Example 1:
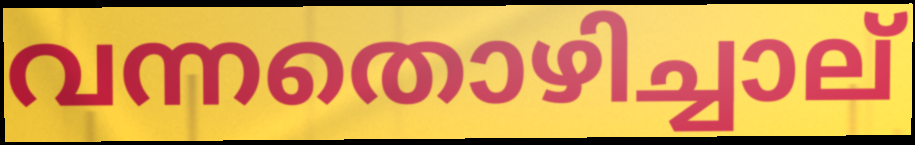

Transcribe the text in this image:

വന്നതൊഴിച്ചാല്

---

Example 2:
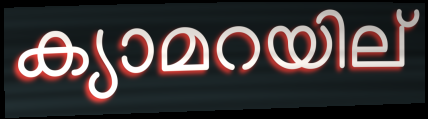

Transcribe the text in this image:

ക്യാമറയില്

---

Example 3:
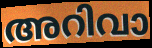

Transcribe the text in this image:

അറിവാ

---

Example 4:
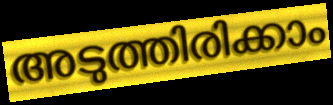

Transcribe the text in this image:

അടുത്തിരിക്കാം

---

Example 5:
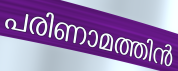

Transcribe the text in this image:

പരിണാമത്തിൻ